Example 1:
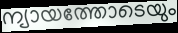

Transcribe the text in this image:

ന്യായത്തോടെയും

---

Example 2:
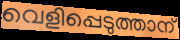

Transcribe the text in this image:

വെളിപ്പെടുത്താന്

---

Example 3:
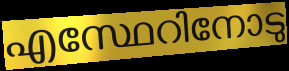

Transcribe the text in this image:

എസ്ഥേറിനോടു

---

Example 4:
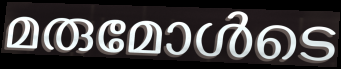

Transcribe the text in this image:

മരുമോൾടെ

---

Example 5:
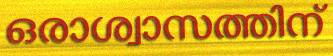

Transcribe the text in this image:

ഒരാശ്വാസത്തിന്